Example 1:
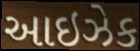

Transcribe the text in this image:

આઇઝેક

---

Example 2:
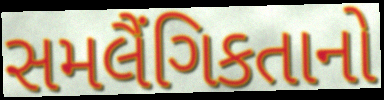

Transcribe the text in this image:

સમલૈંગિકતાનો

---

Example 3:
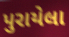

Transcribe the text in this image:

પુરાયેલા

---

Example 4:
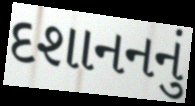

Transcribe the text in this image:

દશાનનનું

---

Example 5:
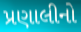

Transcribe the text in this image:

પ્રણાલીનો